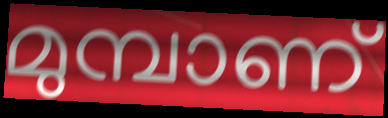
മുമ്പാണ്